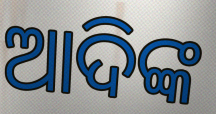
ଆଦିଙ୍କ